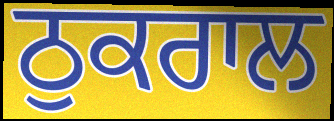
ਠੁਕਰਾਲ